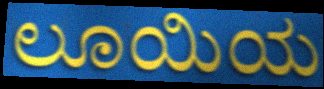
ಲೂಯಿಯ